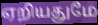
ஏறியதுமே